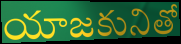
యాజకునితో